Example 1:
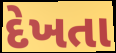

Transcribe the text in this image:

દેખતા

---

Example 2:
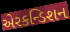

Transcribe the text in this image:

એરકન્ડિશન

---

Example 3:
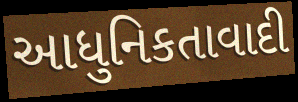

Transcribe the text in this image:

આધુનિકતાવાદી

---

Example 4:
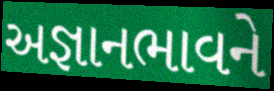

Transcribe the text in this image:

અજ્ઞાનભાવને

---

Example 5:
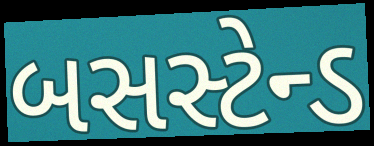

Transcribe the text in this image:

બસસ્ટેન્ડ